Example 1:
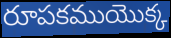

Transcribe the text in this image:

రూపకముయొక్క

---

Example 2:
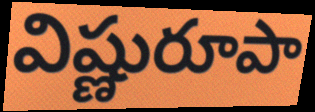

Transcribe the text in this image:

విష్ణురూపా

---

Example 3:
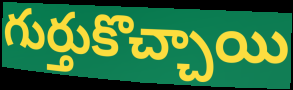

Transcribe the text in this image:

గుర్తుకొచ్చాయి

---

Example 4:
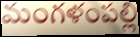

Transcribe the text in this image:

మంగళంపల్లి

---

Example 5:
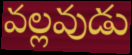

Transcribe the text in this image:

వల్లవుడు